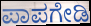
ಪಾಪಗೇಡಿ